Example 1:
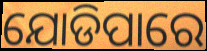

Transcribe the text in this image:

ଯୋଡିପାରେ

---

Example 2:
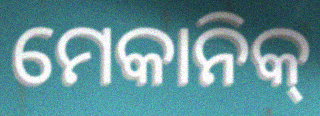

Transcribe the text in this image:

ମେକାନିକ୍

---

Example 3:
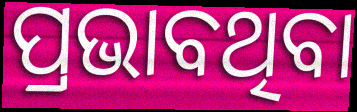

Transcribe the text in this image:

ପ୍ରଭାବଥିବା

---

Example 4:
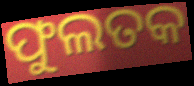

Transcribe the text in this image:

ଫୁଲତକ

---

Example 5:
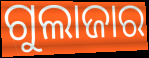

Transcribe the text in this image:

ଗୁଲାଜାର